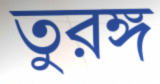
তুরঙ্গ